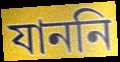
যাননি